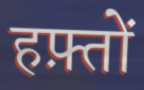
हफ़्तों